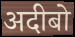
अदीबो